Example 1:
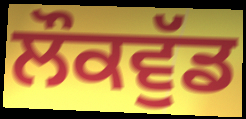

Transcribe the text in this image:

ਲੌਕਵੁੱਡ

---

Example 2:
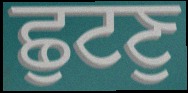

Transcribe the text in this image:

ਛੁਟਣੁ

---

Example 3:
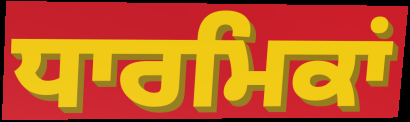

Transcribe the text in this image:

ਧਾਰਮਿਕਾਂ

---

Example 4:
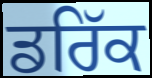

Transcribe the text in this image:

ਡਰਿੱਕ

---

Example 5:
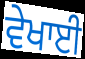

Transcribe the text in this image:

ਵੇਖਾਈ